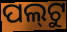
ପଲ୍‍ଟୁ